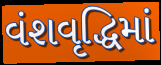
વંશવૃદ્ધિમાં